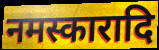
नमस्कारादि